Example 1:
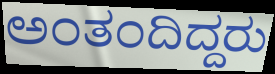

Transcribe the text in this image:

ಅಂತಂದಿದ್ದರು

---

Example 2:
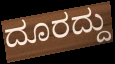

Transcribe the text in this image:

ದೂರದ್ದು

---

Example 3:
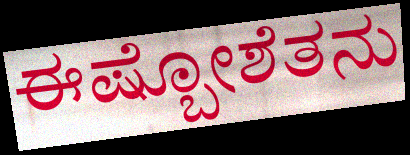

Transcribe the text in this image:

ಈಷ್ಬೋಶೆತನು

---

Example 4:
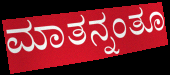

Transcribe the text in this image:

ಮಾತನ್ನಂತೂ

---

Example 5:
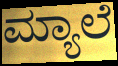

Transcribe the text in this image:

ಮ್ಯಾಲೆ